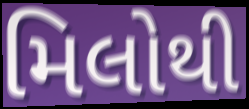
મિલોથી